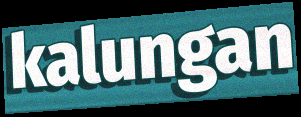
kalungan